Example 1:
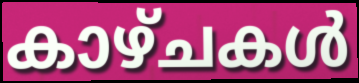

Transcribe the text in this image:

കാഴ്ചകൾ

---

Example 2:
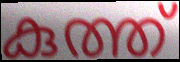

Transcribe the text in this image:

കുത്ത്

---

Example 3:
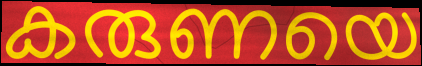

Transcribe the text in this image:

കരുണയെ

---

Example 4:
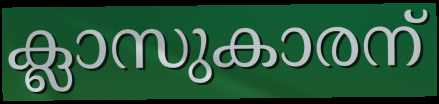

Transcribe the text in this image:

ക്ലാസുകാരന്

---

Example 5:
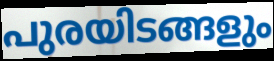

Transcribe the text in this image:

പുരയിടങ്ങളും